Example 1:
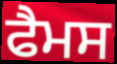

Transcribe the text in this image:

ਫੈਮਸ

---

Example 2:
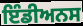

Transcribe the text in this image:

ਇੰਡੀਅਨਸ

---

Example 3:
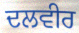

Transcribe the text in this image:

ਦਲਵੀਰ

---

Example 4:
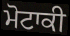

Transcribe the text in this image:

ਮੋਟਾਕੀ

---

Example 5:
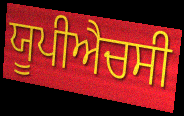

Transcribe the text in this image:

ਯੂਪੀਐਚਸੀ